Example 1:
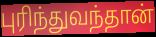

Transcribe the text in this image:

புரிந்துவந்தான்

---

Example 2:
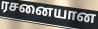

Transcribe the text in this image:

ரசனையான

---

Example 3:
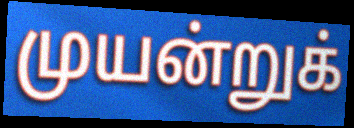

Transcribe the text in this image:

முயன்றுக்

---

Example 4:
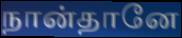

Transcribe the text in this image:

நான்தானே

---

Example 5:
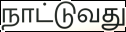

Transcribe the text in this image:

நாட்டுவது